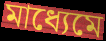
মাধ্যেমে